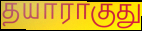
தயாராகுது